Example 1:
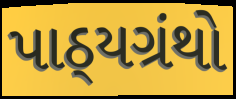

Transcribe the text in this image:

પાઠ્યગ્રંથો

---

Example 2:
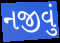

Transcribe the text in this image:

નજીવું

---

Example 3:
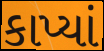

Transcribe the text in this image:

કાપ્યાં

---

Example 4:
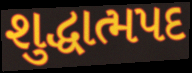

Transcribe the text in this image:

શુદ્ધાત્મપદ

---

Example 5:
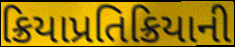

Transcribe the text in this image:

ક્રિયાપ્રતિક્રિયાની